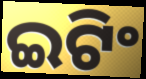
ଇଟିଂ